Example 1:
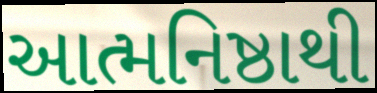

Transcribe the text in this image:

આત્મનિષ્ઠાથી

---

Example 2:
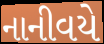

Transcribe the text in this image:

નાનીવયે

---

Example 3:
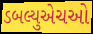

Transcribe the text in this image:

ડબલ્યુએચઓ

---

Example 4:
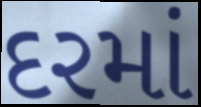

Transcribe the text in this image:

દરમાં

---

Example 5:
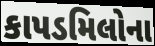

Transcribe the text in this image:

કાપડમિલોના